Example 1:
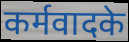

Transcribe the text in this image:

कर्मवादके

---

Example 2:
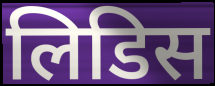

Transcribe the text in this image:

लिडिस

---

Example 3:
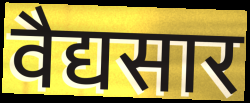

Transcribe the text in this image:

वैद्यसार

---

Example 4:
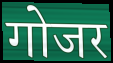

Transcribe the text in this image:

गोजर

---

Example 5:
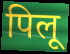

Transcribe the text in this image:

पिलू